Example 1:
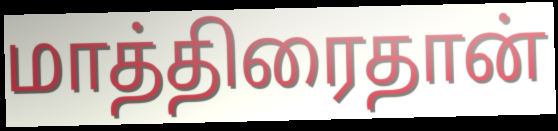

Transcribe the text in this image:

மாத்திரைதான்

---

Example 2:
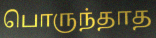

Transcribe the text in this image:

பொருந்தாத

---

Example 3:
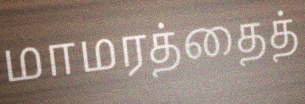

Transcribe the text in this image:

மாமரத்தைத்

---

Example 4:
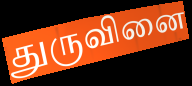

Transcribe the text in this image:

துருவினை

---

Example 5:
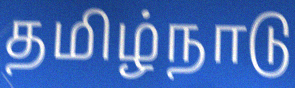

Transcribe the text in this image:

தமிழ்நாடு